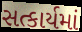
સત્કાર્યમાં